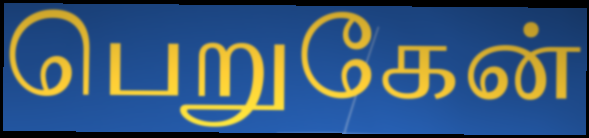
பெறுகேன்